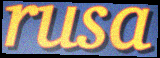
rusa